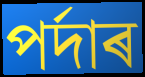
পৰ্দাৰ